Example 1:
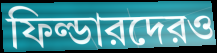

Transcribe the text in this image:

ফিল্ডারদেরও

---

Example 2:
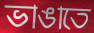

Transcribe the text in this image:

ভাঙাতে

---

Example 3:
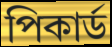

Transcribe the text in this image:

পিকার্ড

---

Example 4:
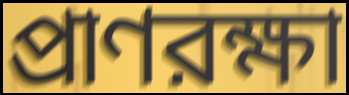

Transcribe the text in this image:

প্রাণরক্ষা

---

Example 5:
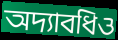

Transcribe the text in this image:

অদ্যাবধিও